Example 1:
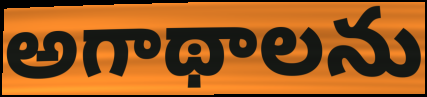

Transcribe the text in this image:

అగాథాలను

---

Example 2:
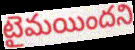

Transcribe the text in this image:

టైమయిందని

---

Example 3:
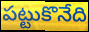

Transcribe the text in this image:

పట్టుకొనేది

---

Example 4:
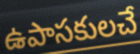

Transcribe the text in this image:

ఉపాసకులచే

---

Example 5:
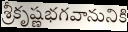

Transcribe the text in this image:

శ్రీకృష్ణభగవానునికి